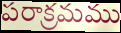
పరాక్రమము